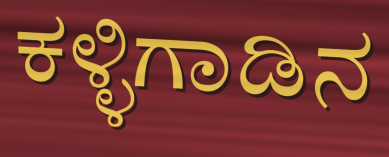
ಕಳ್ಳಿಗಾಡಿನ